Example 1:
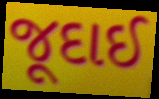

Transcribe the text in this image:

જૂદાઈ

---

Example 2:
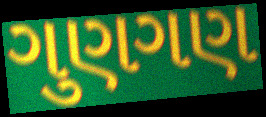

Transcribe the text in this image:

ગુણગણ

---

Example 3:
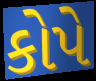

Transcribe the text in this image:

કોપે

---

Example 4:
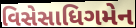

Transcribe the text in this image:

વિસેસાધિગમેન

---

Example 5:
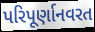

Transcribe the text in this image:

પરિપૂર્ણાનવરત